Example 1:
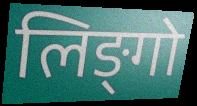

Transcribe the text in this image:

लिङ्गो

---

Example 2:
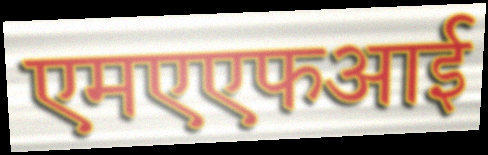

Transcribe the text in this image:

एमएएफआई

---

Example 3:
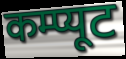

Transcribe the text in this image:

कम्प्यूट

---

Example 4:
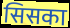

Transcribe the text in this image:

सिसका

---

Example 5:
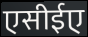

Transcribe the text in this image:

एसीईए